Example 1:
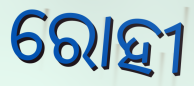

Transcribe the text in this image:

ରୋହୀ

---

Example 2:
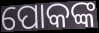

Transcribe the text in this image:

ପୋକଙ୍କ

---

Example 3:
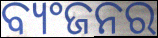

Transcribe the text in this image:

ବ୍ୟଂଜନର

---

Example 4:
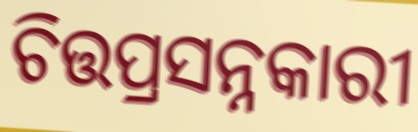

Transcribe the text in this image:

ଚିତ୍ତପ୍ରସନ୍ନକାରୀ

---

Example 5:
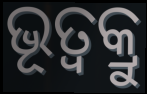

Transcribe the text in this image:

ଭୂତ୍ଵକ୍ରୁ